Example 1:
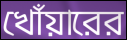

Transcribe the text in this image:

খোঁয়ারের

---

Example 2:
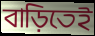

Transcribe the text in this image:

বাড়িতেই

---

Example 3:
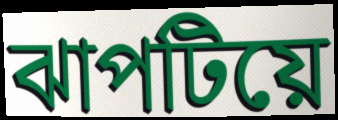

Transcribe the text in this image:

ঝাপটিয়ে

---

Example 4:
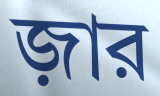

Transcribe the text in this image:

জ়ার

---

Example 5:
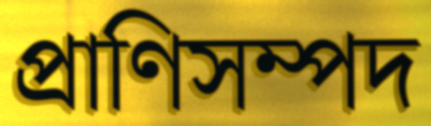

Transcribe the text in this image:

প্রাণিসম্পদ